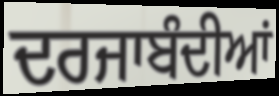
ਦਰਜਾਬੰਦੀਆਂ